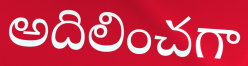
అదిలించగా